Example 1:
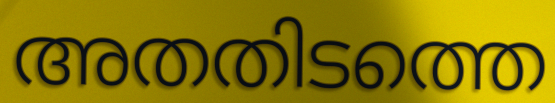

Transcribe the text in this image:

അതതിടത്തെ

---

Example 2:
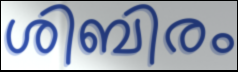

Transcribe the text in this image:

ശിബിരം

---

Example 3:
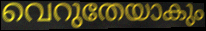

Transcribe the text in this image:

വെറുതേയാകും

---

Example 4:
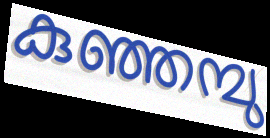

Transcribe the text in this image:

കുഞ്ഞമ്പു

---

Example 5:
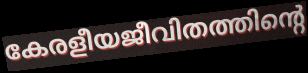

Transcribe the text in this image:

കേരളീയജീവിതത്തിന്റെ